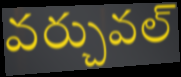
వర్చువల్